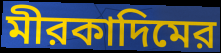
মীরকাদিমের